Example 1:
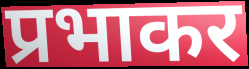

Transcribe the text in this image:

प्रभाकर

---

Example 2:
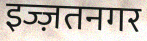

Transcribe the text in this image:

इज्ज़तनगर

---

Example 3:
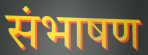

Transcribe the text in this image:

संभाषण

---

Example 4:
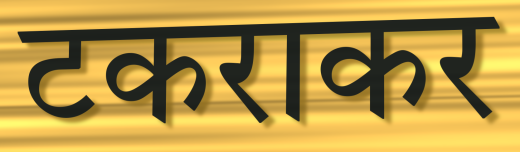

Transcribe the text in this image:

टकराकर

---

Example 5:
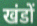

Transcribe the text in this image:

खंडों